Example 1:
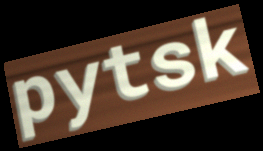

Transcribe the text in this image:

pytsk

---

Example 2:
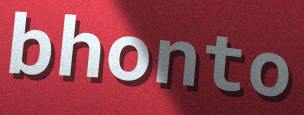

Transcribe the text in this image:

bhonto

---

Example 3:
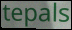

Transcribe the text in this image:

tepals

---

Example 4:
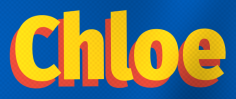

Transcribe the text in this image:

Chloe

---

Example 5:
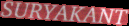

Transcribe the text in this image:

SURYAKANT